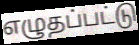
எழுதப்பட்டு